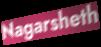
Nagarsheth